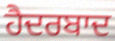
ਹੈਦਰਬਾਦ